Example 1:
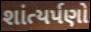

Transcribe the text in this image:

શાંત્યર્પણો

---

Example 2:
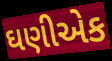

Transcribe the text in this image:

ઘણીએક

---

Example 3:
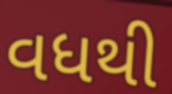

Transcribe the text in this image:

વધથી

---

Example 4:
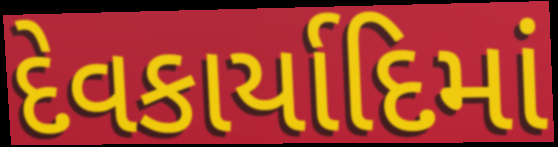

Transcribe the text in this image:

દેવકાર્યાદિમાં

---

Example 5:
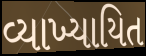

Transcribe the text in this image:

વ્યાખ્યાયિત